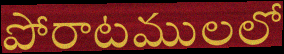
పోరాటములలో